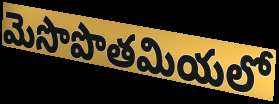
మెసొపొతమియలో